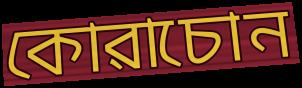
কোৱাচোন